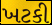
ખટકી